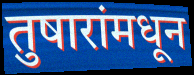
तुषारांमधून